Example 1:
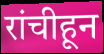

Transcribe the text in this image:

रांचीहून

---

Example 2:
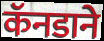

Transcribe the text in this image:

कॅनडाने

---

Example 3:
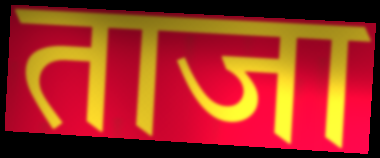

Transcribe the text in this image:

ताजा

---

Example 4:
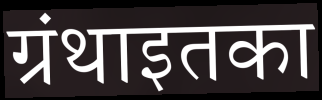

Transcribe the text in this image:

ग्रंथाइतका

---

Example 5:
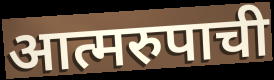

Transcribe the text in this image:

आत्मरुपाची